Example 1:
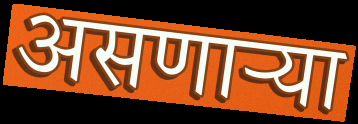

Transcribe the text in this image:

असणाऱ्या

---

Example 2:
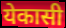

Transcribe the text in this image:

येकासी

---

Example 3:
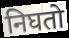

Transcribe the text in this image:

निघतो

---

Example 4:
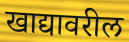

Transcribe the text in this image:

खाद्यावरील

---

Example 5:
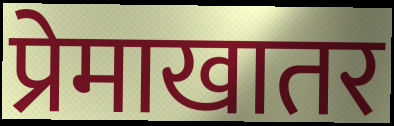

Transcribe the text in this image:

प्रेमाखातर